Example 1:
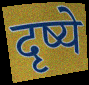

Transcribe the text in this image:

दृष्ये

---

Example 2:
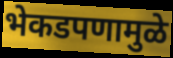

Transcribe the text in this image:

भेकडपणामुळे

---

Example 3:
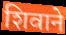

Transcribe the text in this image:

शिवाने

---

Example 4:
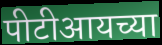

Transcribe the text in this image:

पीटीआयच्या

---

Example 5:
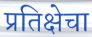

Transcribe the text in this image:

प्रतिक्षेचा